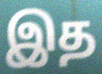
இத